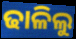
ଢାଳିଲୁ